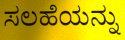
ಸಲಹೆಯನ್ನು